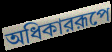
অধিকাররূপে